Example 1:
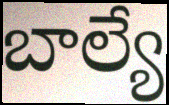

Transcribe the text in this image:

బాల్యే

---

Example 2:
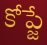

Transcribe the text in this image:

కోప్జే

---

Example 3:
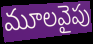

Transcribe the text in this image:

మూలవైపు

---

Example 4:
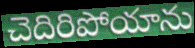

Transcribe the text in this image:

చెదిరిపోయాను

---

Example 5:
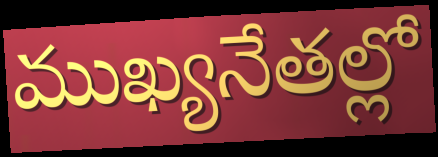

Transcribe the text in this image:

ముఖ్యనేతల్లో